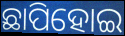
ଛାପିହୋଇ